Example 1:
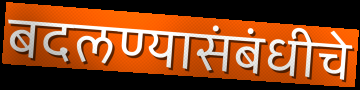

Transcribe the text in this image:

बदलण्यासंबंधीचे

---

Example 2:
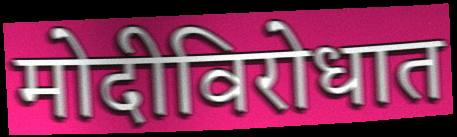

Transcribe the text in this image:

मोदीविरोधात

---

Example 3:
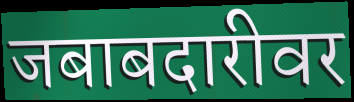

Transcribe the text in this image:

जबाबदारीवर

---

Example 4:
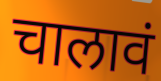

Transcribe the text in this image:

चालावं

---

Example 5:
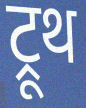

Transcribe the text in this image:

ट्रूथ